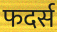
फदर्स